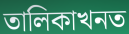
তালিকাখনত